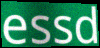
essd